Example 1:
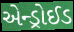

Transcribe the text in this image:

એન્ડ્રોઈડ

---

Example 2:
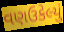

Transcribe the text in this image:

વણઉકેલ્યું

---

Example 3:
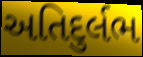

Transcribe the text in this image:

અતિદુર્લભ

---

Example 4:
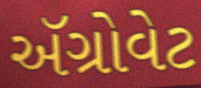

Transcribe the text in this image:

ઍગ્રોવેટ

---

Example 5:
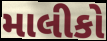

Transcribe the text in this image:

માલીકો